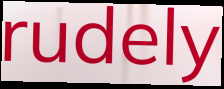
rudely